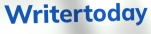
Writertoday